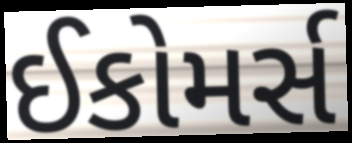
ઈકોમર્સ